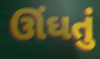
ઊંઘતું